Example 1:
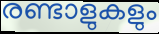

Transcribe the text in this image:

രണ്ടാളുകളും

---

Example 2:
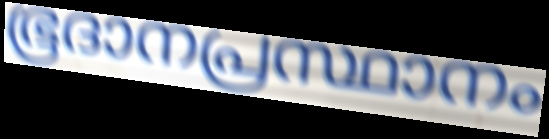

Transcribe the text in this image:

ഭൂദാനപ്രസ്ഥാനം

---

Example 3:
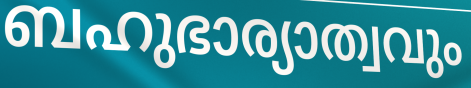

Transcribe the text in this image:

ബഹുഭാര്യാത്വവും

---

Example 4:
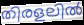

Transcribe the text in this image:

തിരളലിൽ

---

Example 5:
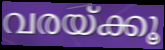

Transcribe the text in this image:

വരയ്ക്കൂ